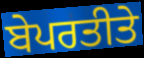
ਬੇਪਰਤੀਤੇ